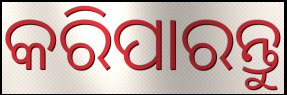
କରିପାରନ୍ତୁ